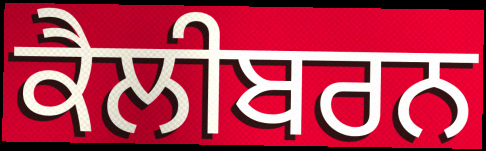
ਕੈਲੀਬਰਨ